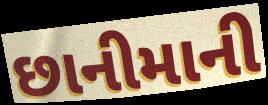
છાનીમાની